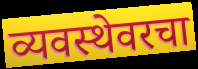
व्यवस्थेवरचा